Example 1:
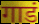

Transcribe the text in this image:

गाडं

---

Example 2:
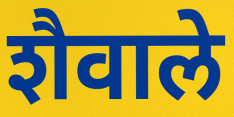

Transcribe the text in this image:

शैवाले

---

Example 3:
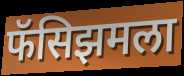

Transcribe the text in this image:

फॅसिझमला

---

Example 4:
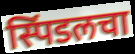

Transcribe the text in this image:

स्पिंडलचा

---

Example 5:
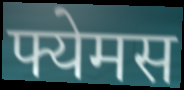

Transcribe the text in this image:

फ्येमस